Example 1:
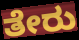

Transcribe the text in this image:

ತೇರು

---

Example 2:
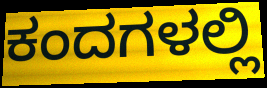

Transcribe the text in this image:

ಕಂದಗಳಲ್ಲಿ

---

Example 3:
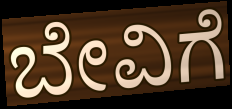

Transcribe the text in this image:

ಬೇವಿಗೆ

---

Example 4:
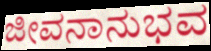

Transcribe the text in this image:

ಜೀವನಾನುಭವ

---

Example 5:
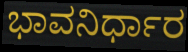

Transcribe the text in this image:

ಭಾವನಿರ್ಧಾರ